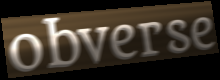
obverse